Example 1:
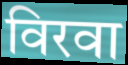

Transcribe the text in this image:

विरवा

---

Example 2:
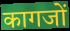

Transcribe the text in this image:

कागजों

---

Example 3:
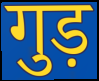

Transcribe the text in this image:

गुड़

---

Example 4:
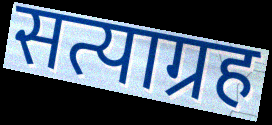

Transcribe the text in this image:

सत्याग्रह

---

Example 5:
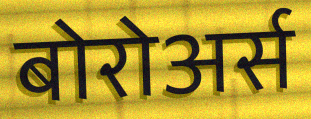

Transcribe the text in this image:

बोरोअर्स